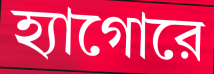
হ্যাগোরে